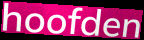
hoofden